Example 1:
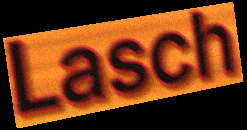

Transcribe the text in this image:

Lasch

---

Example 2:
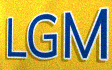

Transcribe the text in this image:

LGM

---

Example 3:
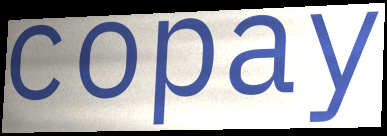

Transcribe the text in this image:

copay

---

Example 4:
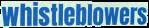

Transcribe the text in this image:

whistleblowers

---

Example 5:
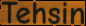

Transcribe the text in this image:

Tehsin